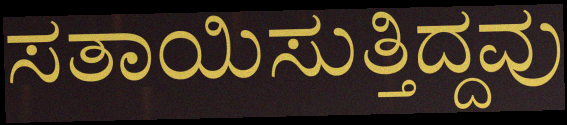
ಸತಾಯಿಸುತ್ತಿದ್ದವು